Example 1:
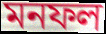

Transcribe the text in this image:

মনফল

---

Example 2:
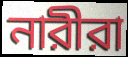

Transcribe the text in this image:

নারীরা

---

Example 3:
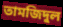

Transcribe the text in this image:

তামজিদুল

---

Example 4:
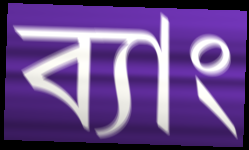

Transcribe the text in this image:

ব্যাং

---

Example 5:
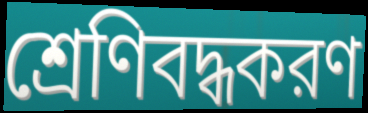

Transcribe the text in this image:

শ্রেণিবদ্ধকরণ